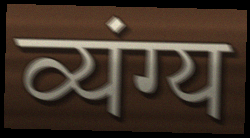
व्यंग्य